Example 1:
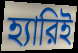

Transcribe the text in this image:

হ্যারিই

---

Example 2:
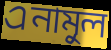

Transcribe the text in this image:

এনামুল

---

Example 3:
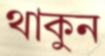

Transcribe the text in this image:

থাকুন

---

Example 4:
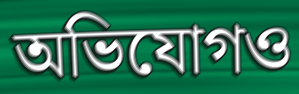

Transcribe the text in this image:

অভিযোগও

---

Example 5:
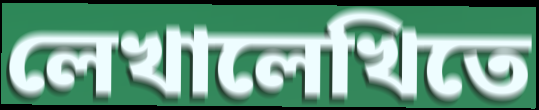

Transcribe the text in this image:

লেখালেখিতে